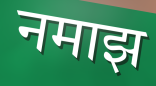
नमाझ